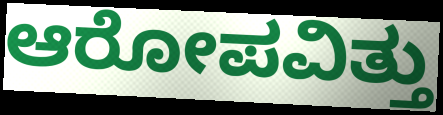
ಆರೋಪವಿತ್ತು